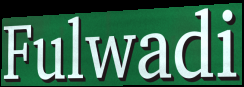
Fulwadi